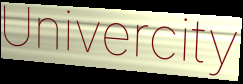
Univercity